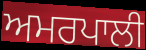
ਅਮਰਪਾਲੀ